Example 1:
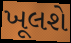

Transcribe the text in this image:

ખૂલશે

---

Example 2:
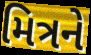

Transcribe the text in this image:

મિત્રને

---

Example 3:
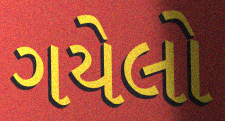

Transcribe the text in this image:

ગયેલો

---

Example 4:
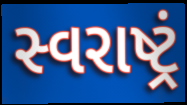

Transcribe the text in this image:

સ્વરાષ્ટ્રં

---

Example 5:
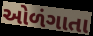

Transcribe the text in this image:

ઓળંગાતા